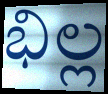
భిల్ల